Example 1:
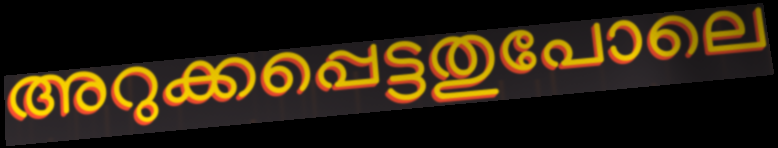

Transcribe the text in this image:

അറുക്കപ്പെട്ടതുപോലെ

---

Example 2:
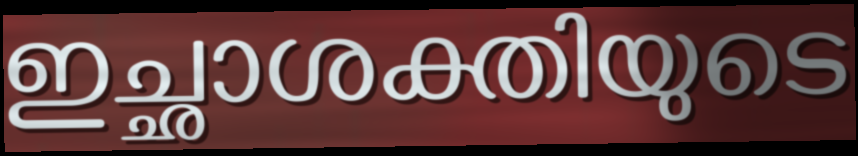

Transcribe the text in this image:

ഇച്ഛാശക്തിയുടെ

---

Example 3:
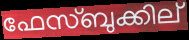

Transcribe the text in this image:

ഫേസ്ബുക്കില്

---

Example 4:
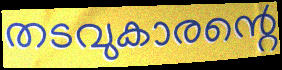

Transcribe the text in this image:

തടവുകാരന്റെ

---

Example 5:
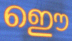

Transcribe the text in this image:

ഇൌ